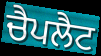
ਚੈਪਲੈਟ